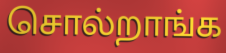
சொல்றாங்க